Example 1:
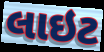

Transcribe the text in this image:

લાઇટ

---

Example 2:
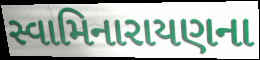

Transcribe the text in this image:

સ્વામિનારાયણના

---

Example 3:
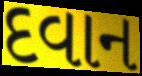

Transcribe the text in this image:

દવાન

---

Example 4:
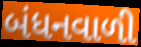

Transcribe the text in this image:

બંધનવાળી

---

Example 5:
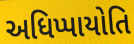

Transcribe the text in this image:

અધિપ્પાયોતિ